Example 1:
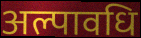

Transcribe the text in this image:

अल्पावधि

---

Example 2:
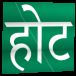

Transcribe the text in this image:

होट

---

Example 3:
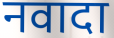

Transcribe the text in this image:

नवादा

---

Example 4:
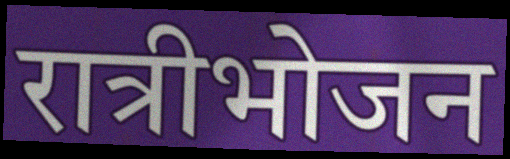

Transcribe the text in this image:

रात्रीभोजन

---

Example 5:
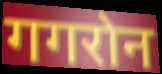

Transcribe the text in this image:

गगरोन